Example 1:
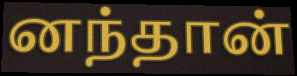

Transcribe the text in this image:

னந்தான்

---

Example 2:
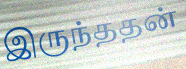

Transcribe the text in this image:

இருந்ததன்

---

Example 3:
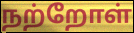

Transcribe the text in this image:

நற்றோள்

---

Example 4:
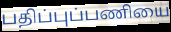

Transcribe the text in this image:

பதிப்புப்பணியை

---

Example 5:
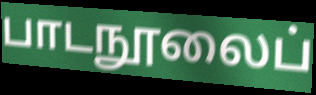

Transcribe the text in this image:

பாடநூலைப்